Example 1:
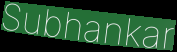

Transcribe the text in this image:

Subhankar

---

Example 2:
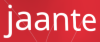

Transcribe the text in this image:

jaante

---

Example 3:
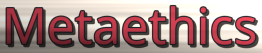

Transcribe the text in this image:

Metaethics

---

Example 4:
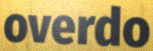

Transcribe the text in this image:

overdo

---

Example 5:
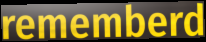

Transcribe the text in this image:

rememberd